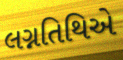
લગ્નતિથિએ